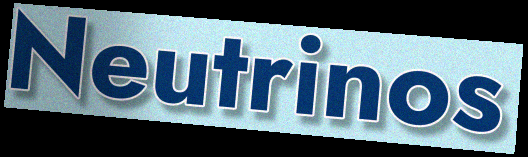
Neutrinos